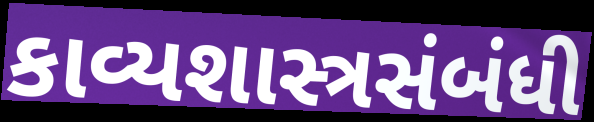
કાવ્યશાસ્ત્રસંબંધી